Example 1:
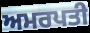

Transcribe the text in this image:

ਅਮਰਪਤੀ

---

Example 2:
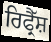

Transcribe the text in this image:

ਰਿਫ੍ਰੈੱਸ਼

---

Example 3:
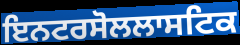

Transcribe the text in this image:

ਇਨਟਰਸੋਲਲਾਸਟਿਕ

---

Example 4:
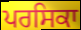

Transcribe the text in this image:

ਪਰਸਿਕਾ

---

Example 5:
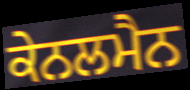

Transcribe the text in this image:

ਕੇਨਲਮੈਨ